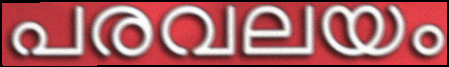
പരവലയം